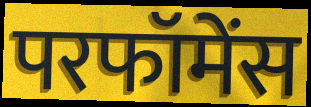
परफॉमेंस